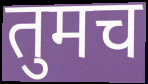
तुमच